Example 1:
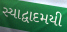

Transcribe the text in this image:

સ્યાદ્વાદમયી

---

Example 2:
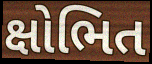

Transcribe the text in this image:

ક્ષોભિત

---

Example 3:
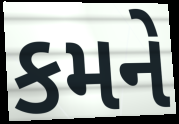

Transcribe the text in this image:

કમને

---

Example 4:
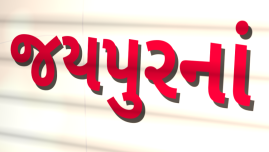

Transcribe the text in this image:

જયપુરનાં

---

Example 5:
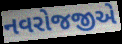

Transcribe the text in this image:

નવરોજજીએ